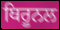
ਥਿਰੂਨਲ